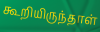
கூறியிருந்தாள்